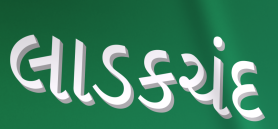
લાડકચંદ